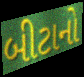
બીટાનો